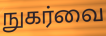
நுகர்வை